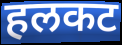
हलकट